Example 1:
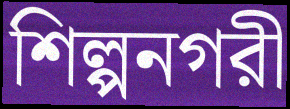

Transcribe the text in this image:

শিল্পনগরী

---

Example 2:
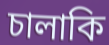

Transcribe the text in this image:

চালাকি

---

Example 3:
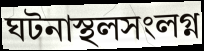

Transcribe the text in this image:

ঘটনাস্থলসংলগ্ন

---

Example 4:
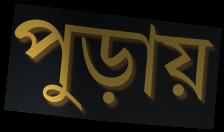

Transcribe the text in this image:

পুড়ায়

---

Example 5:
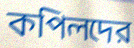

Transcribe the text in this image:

কপিলদের